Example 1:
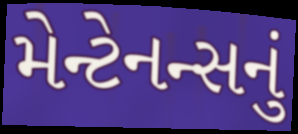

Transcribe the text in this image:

મેન્ટેનન્સનું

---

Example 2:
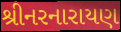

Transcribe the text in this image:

શ્રીનરનારાયણ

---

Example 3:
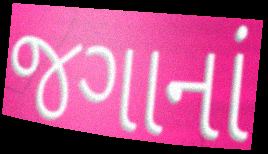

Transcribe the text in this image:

જગાનાં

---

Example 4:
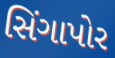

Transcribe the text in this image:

સિંગાપોર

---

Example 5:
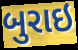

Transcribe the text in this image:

બુરાઇ